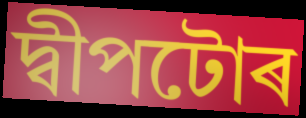
দ্বীপটোৰ